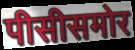
पीसीसमोर